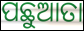
ପଛୁଆତା